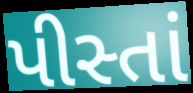
પીસ્તાં